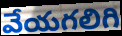
వేయగలిగి